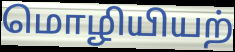
மொழியியற்